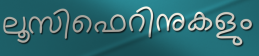
ലൂസിഫെറിനുകളും